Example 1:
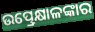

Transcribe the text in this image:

ଉତ୍ପ୍ରେକ୍ଷାଳଙ୍କାର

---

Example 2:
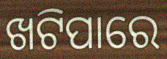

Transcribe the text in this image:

ଖଟିପାରେ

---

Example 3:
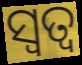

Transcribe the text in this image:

ସ୍ୱତ୍ୱ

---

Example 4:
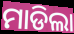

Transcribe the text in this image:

ମାଡିଲା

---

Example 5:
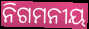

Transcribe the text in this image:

ନିଗମନୀୟ